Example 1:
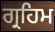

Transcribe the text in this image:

ਗ੍ਰਹਿਮ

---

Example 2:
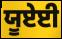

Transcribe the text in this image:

ਯੂਏਈ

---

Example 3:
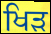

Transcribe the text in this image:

ਖਿੜ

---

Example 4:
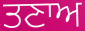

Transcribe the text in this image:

ਤਣਾਅ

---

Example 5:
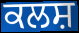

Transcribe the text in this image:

ਕਲਸ਼